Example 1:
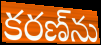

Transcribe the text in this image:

కరణ్‌ను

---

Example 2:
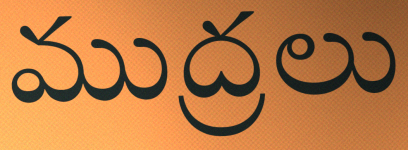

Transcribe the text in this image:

ముద్రలు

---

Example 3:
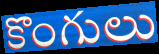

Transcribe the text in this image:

కొంగులు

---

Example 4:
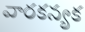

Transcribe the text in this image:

వారకన్యక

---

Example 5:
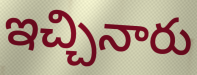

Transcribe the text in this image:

ఇచ్చినారు